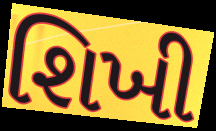
શિખી